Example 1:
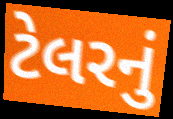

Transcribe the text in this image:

ટેલરનું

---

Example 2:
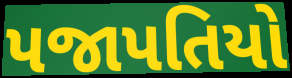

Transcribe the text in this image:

પજાપતિયો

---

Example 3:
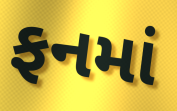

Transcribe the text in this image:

ફનમાં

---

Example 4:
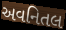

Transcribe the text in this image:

અવનિતલ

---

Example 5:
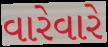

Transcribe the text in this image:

વારેવારે